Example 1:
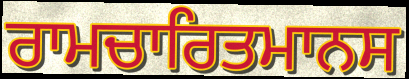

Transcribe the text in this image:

ਰਾਮਚਾਰਿਤਮਾਨਸ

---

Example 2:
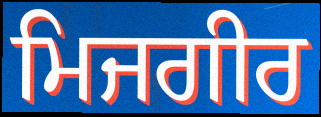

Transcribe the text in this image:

ਮਿਜਗੀਰ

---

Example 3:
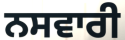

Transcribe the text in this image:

ਨਸਵਾਰੀ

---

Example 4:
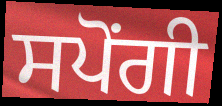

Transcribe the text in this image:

ਸਪੋਂਗੀ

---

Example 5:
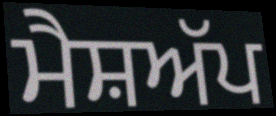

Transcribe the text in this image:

ਮੈਸ਼ਅੱਪ